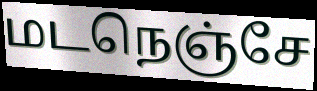
மடநெஞ்சே